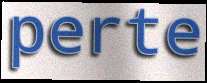
perte